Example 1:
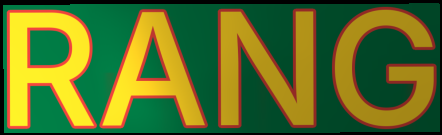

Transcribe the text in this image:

RANG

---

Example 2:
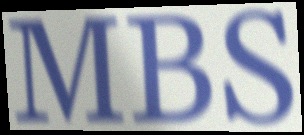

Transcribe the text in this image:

MBS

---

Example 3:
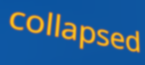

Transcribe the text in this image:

collapsed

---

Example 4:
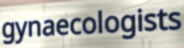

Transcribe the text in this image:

gynaecologists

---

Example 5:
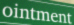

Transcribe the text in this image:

ointment